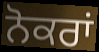
ਨੋਕਰਾਂ